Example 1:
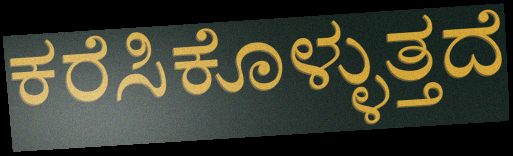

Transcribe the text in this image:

ಕರೆಸಿಕೊಳ್ಳುತ್ತದೆ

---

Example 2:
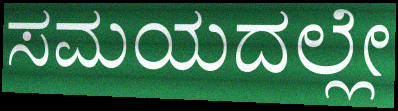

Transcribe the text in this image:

ಸಮಯದಲ್ಲೇ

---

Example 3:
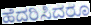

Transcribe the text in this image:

ಹೆದರಿಸಿದರೂ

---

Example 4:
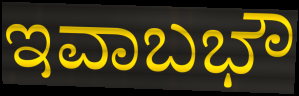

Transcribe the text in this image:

ಇವಾಬಭೌ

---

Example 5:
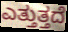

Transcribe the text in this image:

ಎತ್ತುತ್ತದೆ